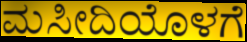
ಮಸೀದಿಯೊಳಗೆ